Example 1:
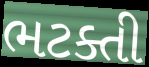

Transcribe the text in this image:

ભટક્તી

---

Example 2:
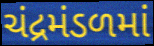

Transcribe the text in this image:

ચંદ્રમંડળમાં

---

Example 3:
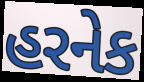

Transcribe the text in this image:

હરનેક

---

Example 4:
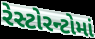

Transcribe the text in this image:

રેસ્ટોરન્ટોમાં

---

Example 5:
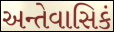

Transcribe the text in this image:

અન્તેવાસિકં